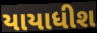
યાયાધીશ